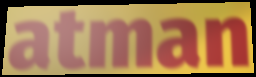
atman